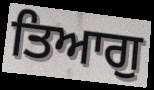
ਤਿਆਗੁ